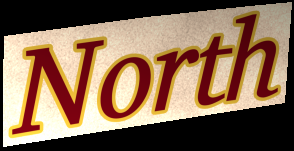
North